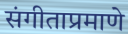
संगीताप्रमाणे